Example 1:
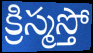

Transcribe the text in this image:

క్రిస్మస్తో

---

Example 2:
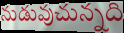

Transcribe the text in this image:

నుడువుచున్నది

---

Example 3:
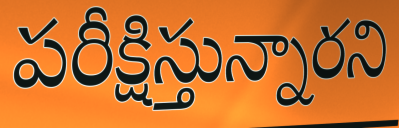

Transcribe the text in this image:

పరీక్షిస్తున్నారని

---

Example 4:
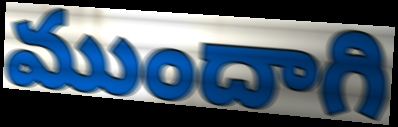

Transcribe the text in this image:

ముందాగి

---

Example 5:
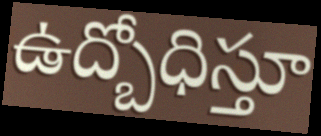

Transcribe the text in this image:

ఉద్బోధిస్తూ